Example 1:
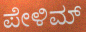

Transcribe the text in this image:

ಪೇಳಿಮ್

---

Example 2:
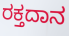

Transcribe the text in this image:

ರಕ್ತದಾನ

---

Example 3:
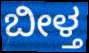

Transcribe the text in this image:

ಬೀಳ್ತ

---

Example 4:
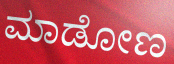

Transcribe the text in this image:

ಮಾಡೋಣ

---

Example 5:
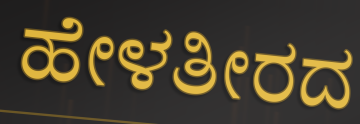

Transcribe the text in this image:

ಹೇಳತೀರದ